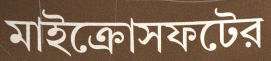
মাইক্রোসফটের